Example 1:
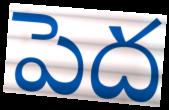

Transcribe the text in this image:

పెద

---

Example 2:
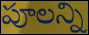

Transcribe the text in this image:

పూలన్ని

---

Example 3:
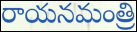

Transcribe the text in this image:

రాయనమంత్రి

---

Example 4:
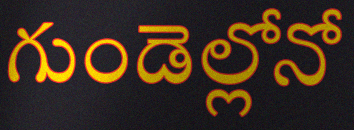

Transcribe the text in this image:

గుండెల్లోనో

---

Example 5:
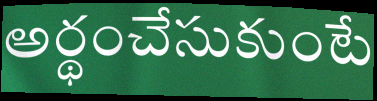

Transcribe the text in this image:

అర్థంచేసుకుంటే